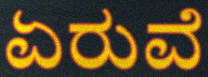
ಏರುವೆ